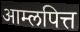
आम्लपित्त